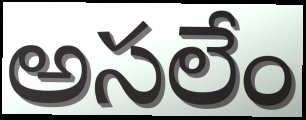
అసలేం